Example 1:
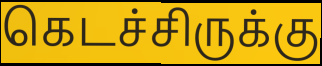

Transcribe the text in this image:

கெடச்சிருக்கு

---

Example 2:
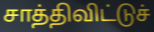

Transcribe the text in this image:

சாத்திவிட்டுச்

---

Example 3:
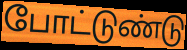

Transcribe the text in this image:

போட்டுண்டு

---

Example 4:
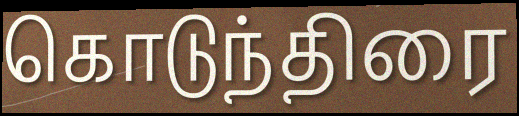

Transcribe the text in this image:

கொடுந்திரை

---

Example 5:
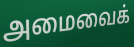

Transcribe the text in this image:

அமைவைக்